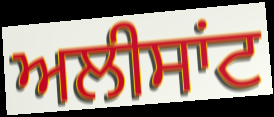
ਅਲੀਸਾਂਟ